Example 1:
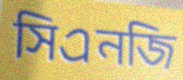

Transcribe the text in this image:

সিএনজি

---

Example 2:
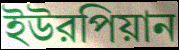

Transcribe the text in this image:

ইউরপিয়ান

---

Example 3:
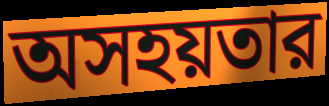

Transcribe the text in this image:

অসহয়তার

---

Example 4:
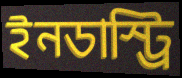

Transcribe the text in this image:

ইনডাস্ট্রি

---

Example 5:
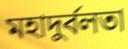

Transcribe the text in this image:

মহাদুর্বলতা